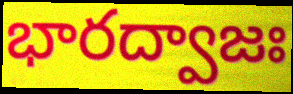
భారద్వాజః